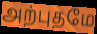
அற்புதமே